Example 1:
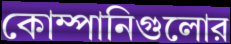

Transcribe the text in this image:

কোম্পানিগুলোর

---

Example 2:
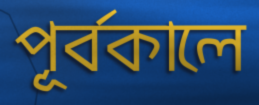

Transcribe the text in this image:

পূর্বকালে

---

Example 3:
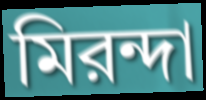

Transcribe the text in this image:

মিরন্দা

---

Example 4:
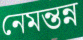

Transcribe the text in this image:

নেমন্তন্ন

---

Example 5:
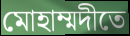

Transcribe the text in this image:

মোহাম্মদীতে